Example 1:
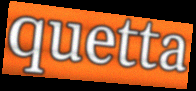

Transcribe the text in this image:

quetta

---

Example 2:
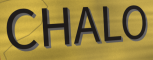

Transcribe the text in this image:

CHALO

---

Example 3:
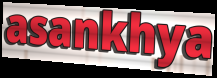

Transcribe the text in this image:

asankhya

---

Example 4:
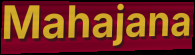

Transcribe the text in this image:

Mahajana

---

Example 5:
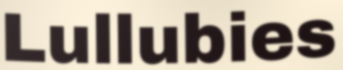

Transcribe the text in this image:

Lullubies